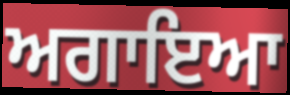
ਅਗਾਇਆ